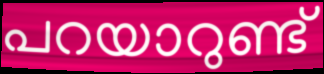
പറയാറുണ്ട്